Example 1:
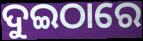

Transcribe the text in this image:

ଦୁଇଠାରେ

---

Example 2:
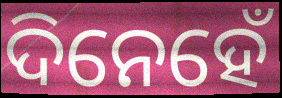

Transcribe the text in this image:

ଦିନେହେଁ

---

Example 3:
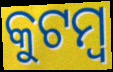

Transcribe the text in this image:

କୁଟମ୍ୱ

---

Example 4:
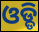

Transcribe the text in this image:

ଓଡ୍ଡି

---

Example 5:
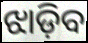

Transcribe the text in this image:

ଝାଡ଼ିବ